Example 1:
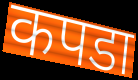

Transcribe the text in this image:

कपडा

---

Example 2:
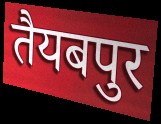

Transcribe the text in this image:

तैयबपुर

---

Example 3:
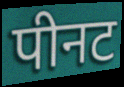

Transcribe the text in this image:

पीनट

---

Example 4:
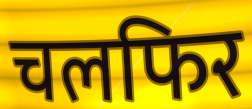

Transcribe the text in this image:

चलफिर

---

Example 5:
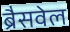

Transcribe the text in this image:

ब्रैसवेल